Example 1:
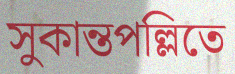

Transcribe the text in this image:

সুকান্তপল্লিতে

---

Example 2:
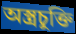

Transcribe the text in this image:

অস্ত্রচুক্তি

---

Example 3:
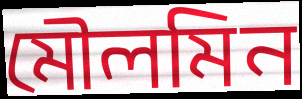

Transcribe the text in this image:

মৌলমিন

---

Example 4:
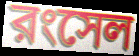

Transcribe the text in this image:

রংসেল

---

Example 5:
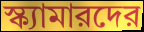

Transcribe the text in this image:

স্ক্যামারদের